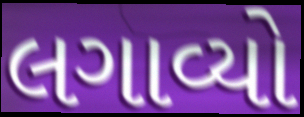
લગાવ્યો